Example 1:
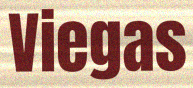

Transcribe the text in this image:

Viegas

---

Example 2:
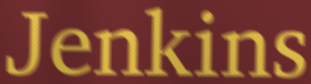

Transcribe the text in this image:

Jenkins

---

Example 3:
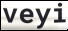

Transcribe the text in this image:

veyi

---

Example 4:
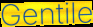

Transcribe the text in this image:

Gentile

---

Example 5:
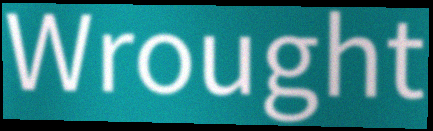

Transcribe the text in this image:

Wrought